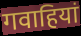
गवाहियां